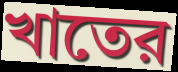
খাতের